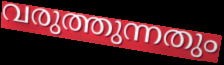
വരുത്തുന്നതും